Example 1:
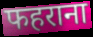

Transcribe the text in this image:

फहराना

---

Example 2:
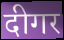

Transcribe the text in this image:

दीगर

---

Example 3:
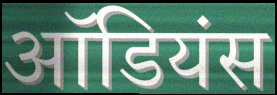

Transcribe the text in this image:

ऑडियंस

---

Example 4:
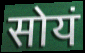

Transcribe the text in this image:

सोयं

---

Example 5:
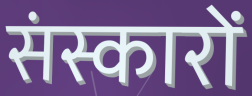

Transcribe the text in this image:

संस्कारों